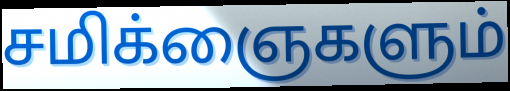
சமிக்ஞைகளும்